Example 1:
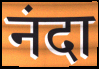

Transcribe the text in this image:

नंदा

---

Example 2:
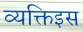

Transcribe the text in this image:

व्यक्तिइस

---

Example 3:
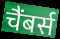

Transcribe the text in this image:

चैंबर्स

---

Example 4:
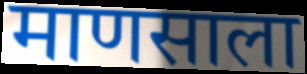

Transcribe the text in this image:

माणसाला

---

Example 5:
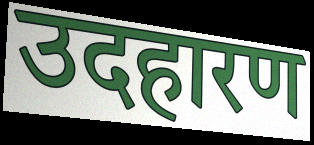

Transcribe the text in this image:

उदहारण